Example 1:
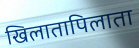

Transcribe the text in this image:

खिलातापिलाता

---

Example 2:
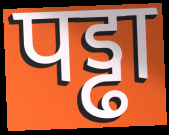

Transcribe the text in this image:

पड्ढा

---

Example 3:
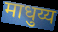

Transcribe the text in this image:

माधुय्य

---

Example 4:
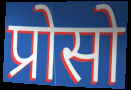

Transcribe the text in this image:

प्रोसो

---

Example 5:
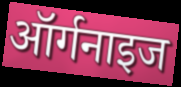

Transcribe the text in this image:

ऑर्गनाइज